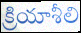
క్రియాశీలి